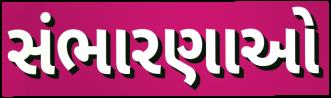
સંભારણાઓ